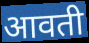
आवती